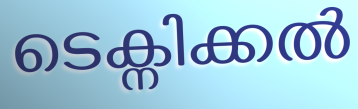
ടെക്നിക്കൽ